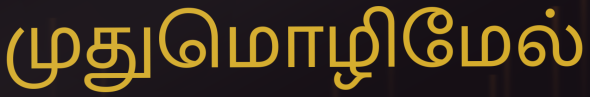
முதுமொழிமேல்